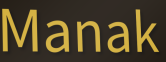
Manak